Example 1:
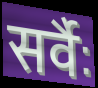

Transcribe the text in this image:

सर्वैः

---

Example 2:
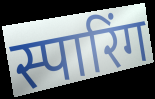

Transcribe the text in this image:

स्पारिंग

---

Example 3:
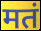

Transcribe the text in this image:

मतं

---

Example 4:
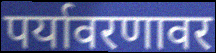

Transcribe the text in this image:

पर्यावरणावर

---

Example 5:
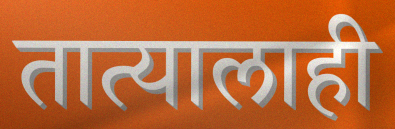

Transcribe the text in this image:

तात्यालाही